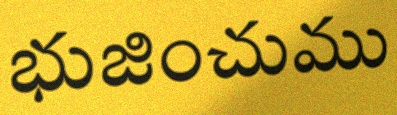
భుజించుము